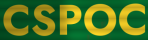
CSPOC